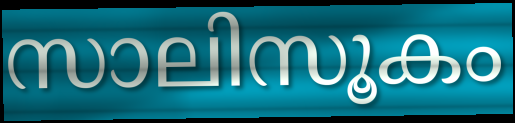
സാലിസൂകം